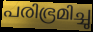
പരിഭ്രമിച്ചു